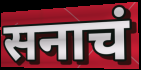
सनाचं